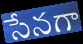
సేనగా